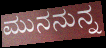
ಮುನನುನ್ನ